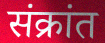
संक्रांत